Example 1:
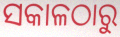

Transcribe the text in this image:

ସକାଳଠାରୁ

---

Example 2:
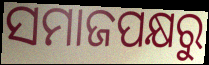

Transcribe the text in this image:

ସମାଜପକ୍ଷରୁ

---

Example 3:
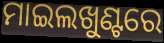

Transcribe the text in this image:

ମାଇଲଖୁଣ୍ଟରେ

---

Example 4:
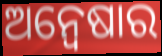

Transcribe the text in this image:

ଅନ୍ବେଷାର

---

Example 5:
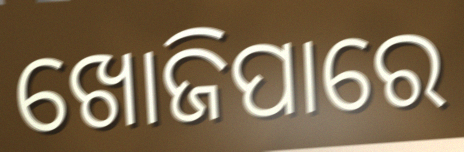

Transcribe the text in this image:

ଖୋଜିପାରେ